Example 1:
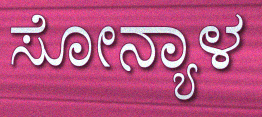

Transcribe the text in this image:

ಸೋನ್ಯಾಳ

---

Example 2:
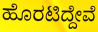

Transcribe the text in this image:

ಹೊರಟಿದ್ದೇವೆ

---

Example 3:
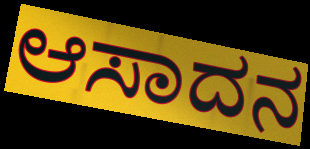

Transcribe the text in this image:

ಆಸಾದನ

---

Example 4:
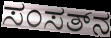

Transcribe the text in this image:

ಸಂಸತ್‌ನ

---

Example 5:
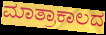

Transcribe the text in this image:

ಮಾತ್ರಾಕಾಲದ